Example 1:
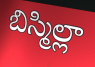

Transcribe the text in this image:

బిస్మిల్లా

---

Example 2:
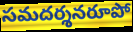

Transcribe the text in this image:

సమదర్శనరూపో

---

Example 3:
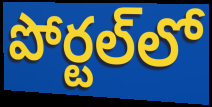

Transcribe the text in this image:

పోర్టల్‌లో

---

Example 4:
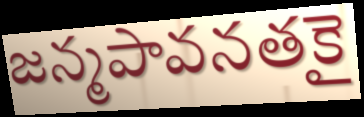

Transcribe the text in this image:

జన్మపావనతకై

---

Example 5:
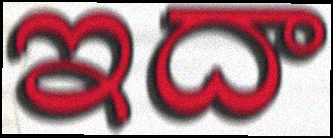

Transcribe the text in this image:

ఇదా